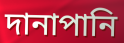
দানাপানি